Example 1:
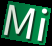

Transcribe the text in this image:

Mi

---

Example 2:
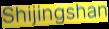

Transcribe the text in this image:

Shijingshan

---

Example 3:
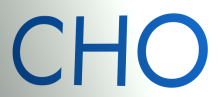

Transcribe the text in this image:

CHO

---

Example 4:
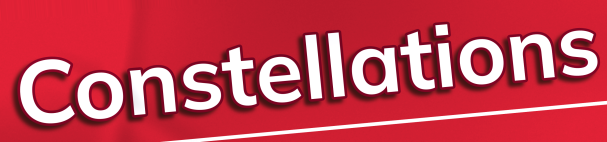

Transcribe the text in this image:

Constellations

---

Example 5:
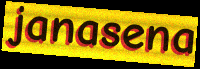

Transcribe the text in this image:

janasena